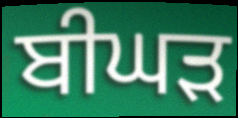
ਬੀਘੜ